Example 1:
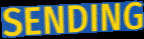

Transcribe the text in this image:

SENDING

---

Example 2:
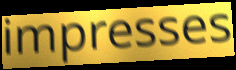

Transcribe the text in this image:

impresses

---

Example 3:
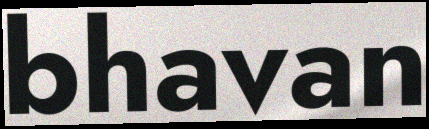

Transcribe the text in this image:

bhavan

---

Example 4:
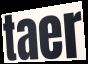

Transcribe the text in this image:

taer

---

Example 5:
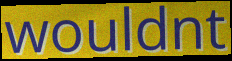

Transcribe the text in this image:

wouldnt